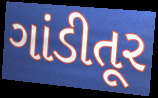
ગાંડીતૂર